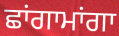
ਛਾਂਗਾਮਾਂਗਾ